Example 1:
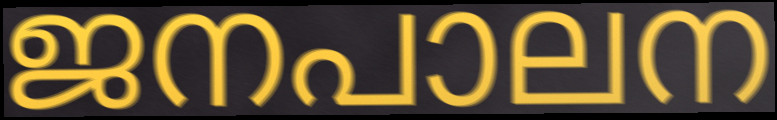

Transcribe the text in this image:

ജനപാലന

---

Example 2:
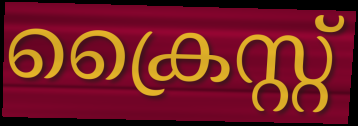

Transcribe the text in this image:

ക്രൈസ്റ്റ്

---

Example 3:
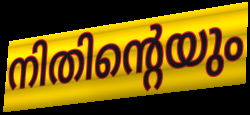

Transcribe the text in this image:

നിതിന്റെയും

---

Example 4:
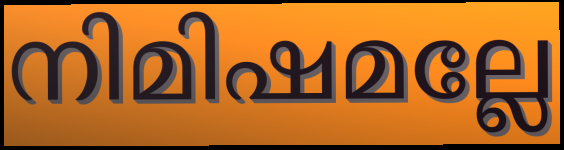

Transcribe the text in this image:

നിമിഷമല്ലേ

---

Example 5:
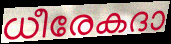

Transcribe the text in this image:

ധീരേകദാ